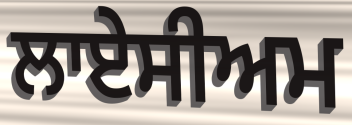
ਲਾਏਸੀਅਮ